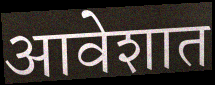
आवेशात